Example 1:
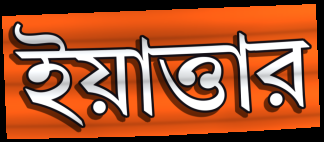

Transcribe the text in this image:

ইয়াত্তার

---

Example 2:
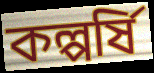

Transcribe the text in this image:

কল্পর্ষি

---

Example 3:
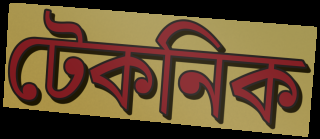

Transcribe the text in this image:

টেকনিক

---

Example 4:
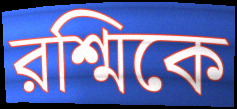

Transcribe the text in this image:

রশ্মিকে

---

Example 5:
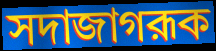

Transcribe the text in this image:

সদাজাগরূক